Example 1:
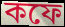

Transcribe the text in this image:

কফে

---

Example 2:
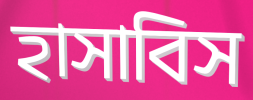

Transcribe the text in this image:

হাসাবিস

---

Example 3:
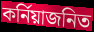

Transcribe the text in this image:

কর্নিয়াজনিত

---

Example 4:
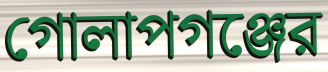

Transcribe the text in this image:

গোলাপগঞ্জের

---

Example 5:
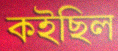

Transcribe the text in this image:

কইছিল